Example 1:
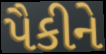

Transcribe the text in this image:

પૈકીને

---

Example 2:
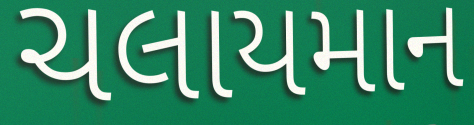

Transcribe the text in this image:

ચલાયમાન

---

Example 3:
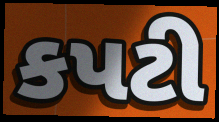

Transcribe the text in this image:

કપટી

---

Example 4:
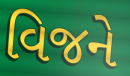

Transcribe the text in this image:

વિજને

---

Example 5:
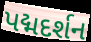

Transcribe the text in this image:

પદ્મદર્શન